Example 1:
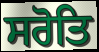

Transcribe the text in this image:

ਸਰੋਤਿ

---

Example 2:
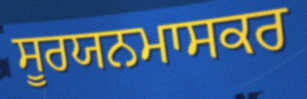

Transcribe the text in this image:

ਸੂਰਯਨਮਾਸਕਰ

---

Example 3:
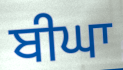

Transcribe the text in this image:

ਬੀਘਾ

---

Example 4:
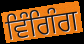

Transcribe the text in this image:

ਵਿੰਗਿੰਗ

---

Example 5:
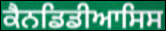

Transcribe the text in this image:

ਕੈਨਡਿਡੀਆਸਿਸ